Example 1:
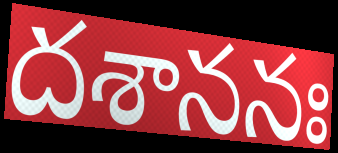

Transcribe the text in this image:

దశాననః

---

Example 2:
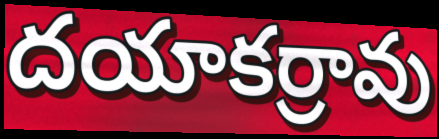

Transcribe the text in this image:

దయాకర్రావు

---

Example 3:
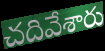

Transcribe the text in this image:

చదివేశారు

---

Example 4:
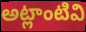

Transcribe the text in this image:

అట్లాంటివి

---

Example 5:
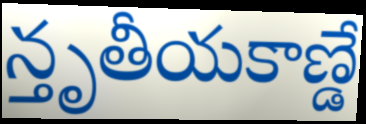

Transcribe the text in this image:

న్తృతీయకాణ్డే